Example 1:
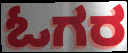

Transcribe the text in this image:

ಓಗರ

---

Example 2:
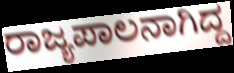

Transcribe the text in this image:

ರಾಜ್ಯಪಾಲನಾಗಿದ್ದ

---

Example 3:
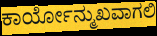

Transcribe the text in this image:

ಕಾರ್ಯೋನ್ಮುಖವಾಗಲಿ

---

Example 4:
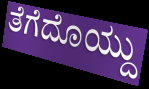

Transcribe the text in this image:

ತೆಗೆದೊಯ್ದು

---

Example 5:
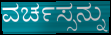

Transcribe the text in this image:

ವರ್ಚಸ್ಸನ್ನು